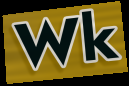
Wk